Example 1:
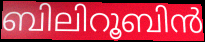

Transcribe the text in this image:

ബിലിറൂബിൻ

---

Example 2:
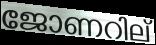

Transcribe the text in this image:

ജോണറില്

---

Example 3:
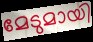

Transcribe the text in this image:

മേടുമായി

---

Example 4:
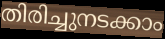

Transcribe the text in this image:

തിരിച്ചുനടക്കാം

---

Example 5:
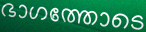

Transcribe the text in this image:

ഭാഗത്തോടെ